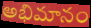
అభిమానం